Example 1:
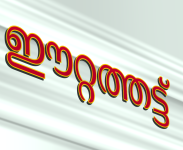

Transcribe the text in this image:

ഈറ്റത്തട്ട്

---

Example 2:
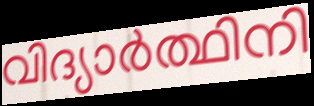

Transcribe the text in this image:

വിദ്യാർത്ഥിനി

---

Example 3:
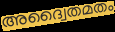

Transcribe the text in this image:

അദ്വൈതമതം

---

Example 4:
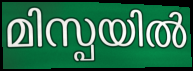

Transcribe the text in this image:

മിസ്പയിൽ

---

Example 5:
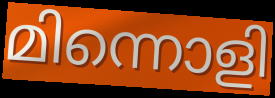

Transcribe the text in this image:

മിന്നൊളി